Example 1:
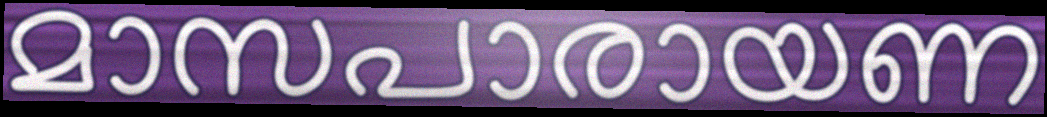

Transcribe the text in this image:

മാസപാരായണ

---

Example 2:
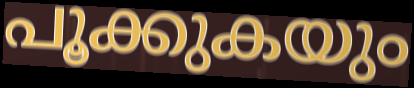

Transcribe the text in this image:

പൂക്കുകയും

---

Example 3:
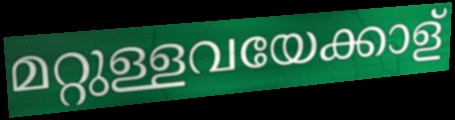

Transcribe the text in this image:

മറ്റുള്ളവയേക്കാള്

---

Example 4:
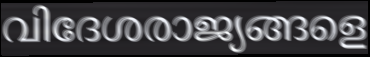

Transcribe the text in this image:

വിദേശരാജ്യങ്ങളെ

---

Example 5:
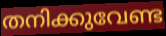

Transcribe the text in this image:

തനിക്കുവേണ്ട